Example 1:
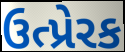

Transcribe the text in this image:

ઉત્પ્રેરક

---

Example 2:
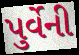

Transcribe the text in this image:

પુર્વેની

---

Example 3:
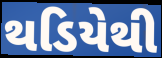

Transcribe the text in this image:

થડિયેથી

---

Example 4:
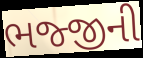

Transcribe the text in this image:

ભજ્જીની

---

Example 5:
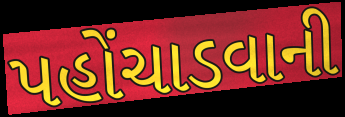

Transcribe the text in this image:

પહોંચાડવાની